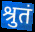
श्रुतं